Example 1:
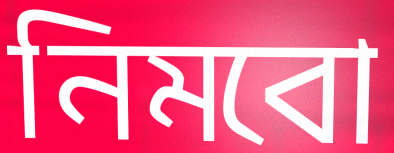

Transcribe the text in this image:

নিমবো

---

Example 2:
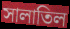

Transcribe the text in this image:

সালাতিল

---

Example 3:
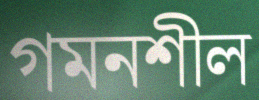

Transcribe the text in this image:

গমনশীল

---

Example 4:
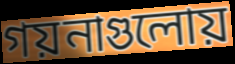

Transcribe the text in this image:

গয়নাগুলোয়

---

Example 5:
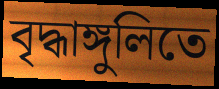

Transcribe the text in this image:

বৃদ্ধাঙ্গুলিতে